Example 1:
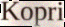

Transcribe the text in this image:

Kopri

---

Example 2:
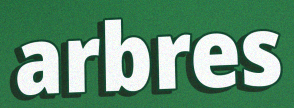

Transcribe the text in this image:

arbres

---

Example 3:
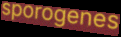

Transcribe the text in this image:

sporogenes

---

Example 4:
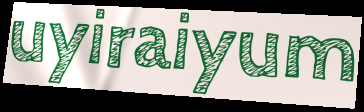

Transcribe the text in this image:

uyiraiyum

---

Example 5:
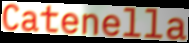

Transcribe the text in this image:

Catenella